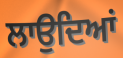
ਲਾਉਦਿਆਂ